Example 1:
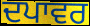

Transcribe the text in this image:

ਦਪਾਵਰ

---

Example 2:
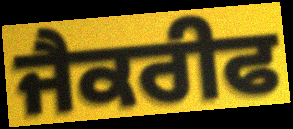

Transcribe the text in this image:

ਜੈਕਰੀਫ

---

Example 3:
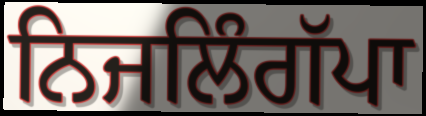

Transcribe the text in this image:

ਨਿਜਲਿੰਗੱਪਾ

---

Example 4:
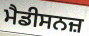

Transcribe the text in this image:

ਮੈਡੀਸਨਜ਼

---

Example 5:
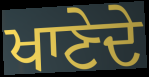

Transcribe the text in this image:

ਖਾਣੇਦੇ